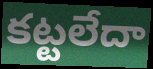
కట్టలేదా